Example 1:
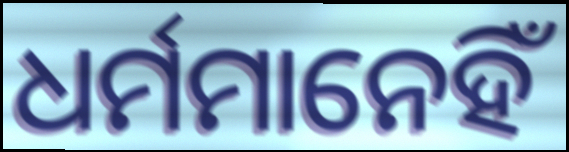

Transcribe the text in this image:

ଧର୍ମମାନେହିଁ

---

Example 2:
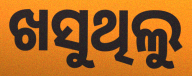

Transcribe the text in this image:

ଖସୁଥିଲୁ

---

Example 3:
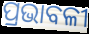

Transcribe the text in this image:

ପ୍ରଭାବଳୀ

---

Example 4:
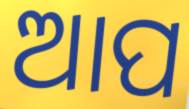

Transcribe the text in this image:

ଆପ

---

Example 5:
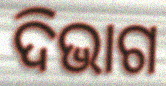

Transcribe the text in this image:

ଦିଭାଗ